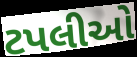
ટપલીઓ